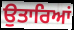
ਉਤਾਰਿਆਂ